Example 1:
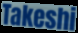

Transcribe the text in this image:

Takeshi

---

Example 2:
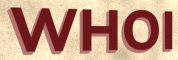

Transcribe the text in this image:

WHOI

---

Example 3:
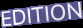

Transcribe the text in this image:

EDITION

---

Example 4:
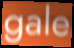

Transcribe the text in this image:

gale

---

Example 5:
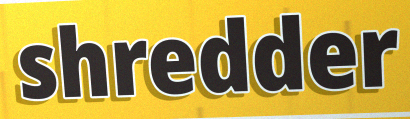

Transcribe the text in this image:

shredder